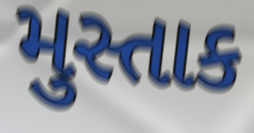
મુસ્તાક